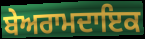
ਬੇਅਰਾਮਦਾਇਕ